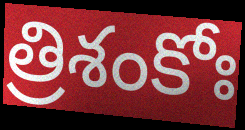
త్రిశంకోః